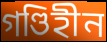
গণ্ডিহীন